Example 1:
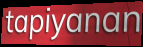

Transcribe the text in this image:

tapiyanan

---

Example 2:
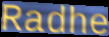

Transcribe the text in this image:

Radhe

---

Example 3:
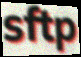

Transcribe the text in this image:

sftp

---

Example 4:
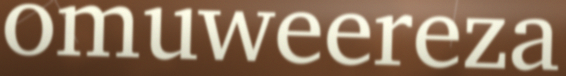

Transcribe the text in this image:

omuweereza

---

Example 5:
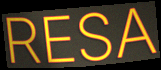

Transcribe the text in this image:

RESA